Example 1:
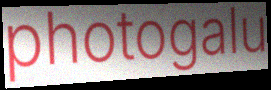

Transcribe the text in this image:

photogalu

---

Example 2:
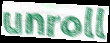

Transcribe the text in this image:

unroll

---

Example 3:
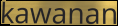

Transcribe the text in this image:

kawanan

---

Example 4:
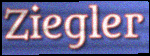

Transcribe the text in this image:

Ziegler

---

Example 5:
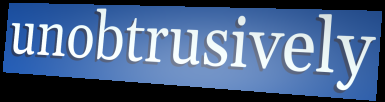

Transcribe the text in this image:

unobtrusively